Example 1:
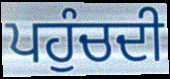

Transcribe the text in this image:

ਪਹੁੰਚਦੀ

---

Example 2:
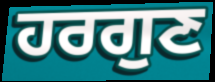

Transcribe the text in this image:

ਹਰਗੁਣ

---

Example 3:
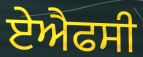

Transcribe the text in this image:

ਏਐਫਸੀ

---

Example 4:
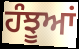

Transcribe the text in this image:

ਹੰਝੂਆਂ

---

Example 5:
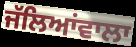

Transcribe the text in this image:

ਜੱਲਿਆਂਵਾਲਾ